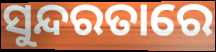
ସୁନ୍ଦରତାରେ